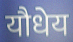
यौधेय